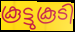
കൂട്ടുകൂടി